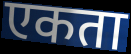
एकता